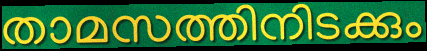
താമസത്തിനിടക്കും